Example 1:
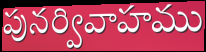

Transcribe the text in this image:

పునర్వివాహము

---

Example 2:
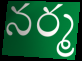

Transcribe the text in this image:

నర్మ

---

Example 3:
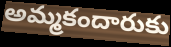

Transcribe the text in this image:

అమ్మకందారుకు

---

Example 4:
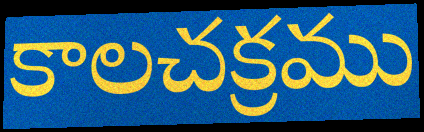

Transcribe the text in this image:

కాలచక్రము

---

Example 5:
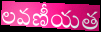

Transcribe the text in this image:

లవణీయత